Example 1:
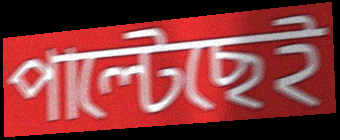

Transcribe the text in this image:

পাল্টেছেই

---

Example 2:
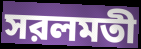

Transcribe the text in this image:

সরলমতী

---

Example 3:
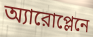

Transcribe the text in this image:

অ্যারোপ্লেনে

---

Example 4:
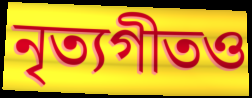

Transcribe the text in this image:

নৃত্যগীতও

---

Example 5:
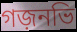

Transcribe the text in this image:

গজ়নভি